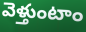
వెళ్తుంటాం